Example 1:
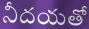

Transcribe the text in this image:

నీదయతో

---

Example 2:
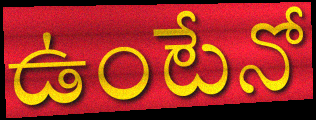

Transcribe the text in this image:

ఉంటేనో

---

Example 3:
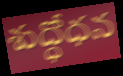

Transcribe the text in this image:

శుద్ధోధన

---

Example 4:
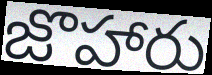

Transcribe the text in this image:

జొహారు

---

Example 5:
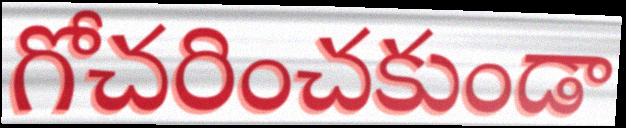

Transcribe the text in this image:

గోచరించకుండా